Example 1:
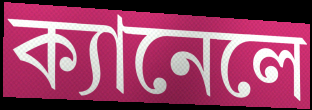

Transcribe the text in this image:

ক্যানেলে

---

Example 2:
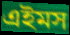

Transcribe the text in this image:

এইমস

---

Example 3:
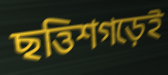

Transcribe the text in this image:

ছত্তিশগড়েই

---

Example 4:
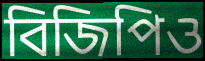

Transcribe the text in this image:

বিজিপিও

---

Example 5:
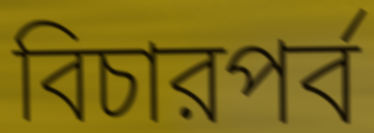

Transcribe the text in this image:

বিচারপর্ব